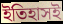
ইতিহাসই